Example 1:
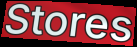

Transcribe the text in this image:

Stores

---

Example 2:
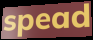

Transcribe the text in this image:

spead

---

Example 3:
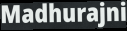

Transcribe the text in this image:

Madhurajni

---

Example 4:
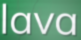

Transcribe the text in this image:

lava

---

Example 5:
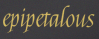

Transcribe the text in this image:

epipetalous